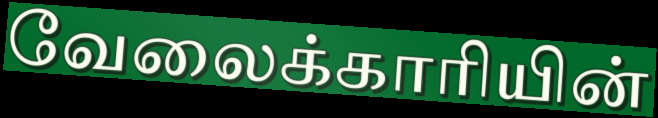
வேலைக்காரியின்